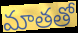
మాతతో